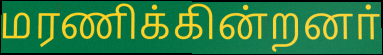
மரணிக்கின்றனர்